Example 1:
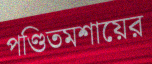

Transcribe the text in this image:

পণ্ডিতমশায়ের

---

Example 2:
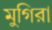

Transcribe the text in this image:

মুগিরা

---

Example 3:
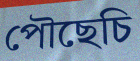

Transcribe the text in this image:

পৌছেচি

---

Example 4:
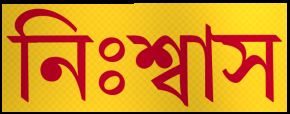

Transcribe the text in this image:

নিঃশ্বাস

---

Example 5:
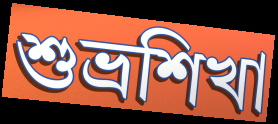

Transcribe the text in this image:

শুভ্রশিখা